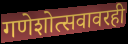
गणेशोत्सवावरही